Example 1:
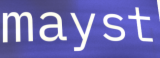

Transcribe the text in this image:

mayst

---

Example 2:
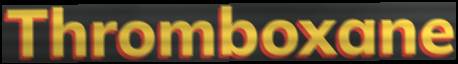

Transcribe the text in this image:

Thromboxane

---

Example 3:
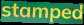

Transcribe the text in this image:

stamped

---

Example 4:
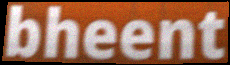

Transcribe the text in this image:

bheent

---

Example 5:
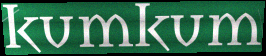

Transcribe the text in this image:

kumkum